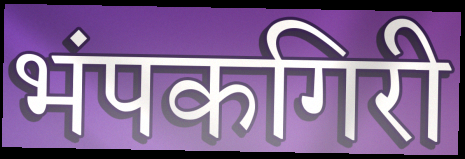
भंपकगिरी